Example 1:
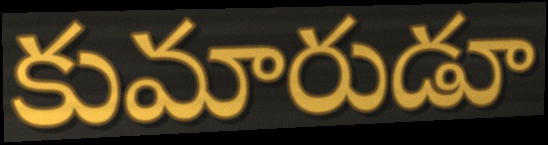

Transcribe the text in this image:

కుమారుడూ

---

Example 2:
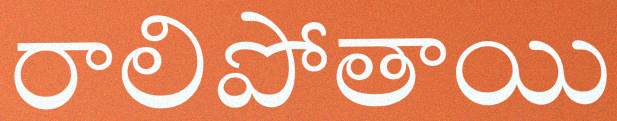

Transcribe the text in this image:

రాలిపోతాయి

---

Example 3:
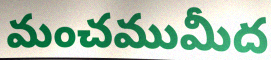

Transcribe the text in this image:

మంచముమీద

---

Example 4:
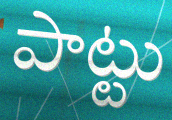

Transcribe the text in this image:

పాట్టు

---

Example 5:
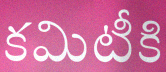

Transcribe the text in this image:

కమిటీకి